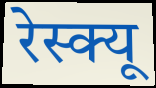
रेस्क्यू